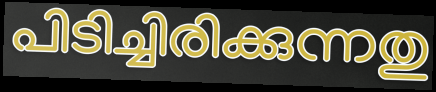
പിടിച്ചിരിക്കുന്നതു